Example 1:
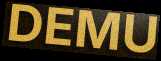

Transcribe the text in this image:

DEMU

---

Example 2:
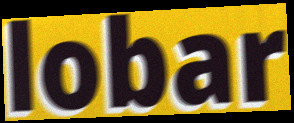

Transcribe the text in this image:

lobar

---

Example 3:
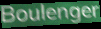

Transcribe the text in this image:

Boulenger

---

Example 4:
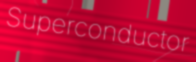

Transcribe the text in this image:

Superconductor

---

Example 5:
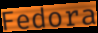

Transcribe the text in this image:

Fedora